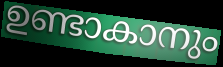
ഉണ്ടാകാനും